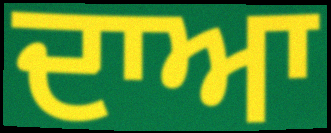
ਦਾਆ